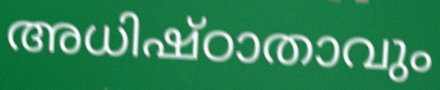
അധിഷ്ഠാതാവും